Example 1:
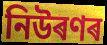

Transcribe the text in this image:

নিউৰণৰ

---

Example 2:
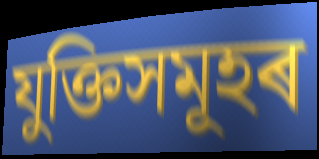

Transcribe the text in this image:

যুক্তিসমূহৰ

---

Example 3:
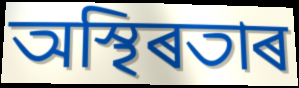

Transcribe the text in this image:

অস্থিৰতাৰ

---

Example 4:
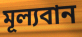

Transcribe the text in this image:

মূল্যবান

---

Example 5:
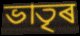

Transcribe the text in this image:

ভাতৃৰ